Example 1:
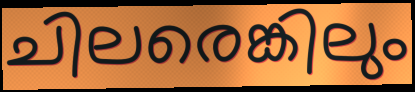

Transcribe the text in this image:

ചിലരെങ്കിലും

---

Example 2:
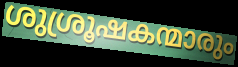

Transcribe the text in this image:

ശുശ്രൂഷകന്മാരും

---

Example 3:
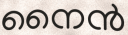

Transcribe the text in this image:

നൈൻ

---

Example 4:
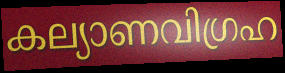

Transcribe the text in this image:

കല്യാണവിഗ്രഹ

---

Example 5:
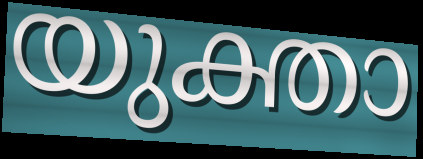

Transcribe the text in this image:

യുക്താ